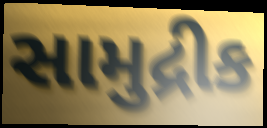
સામુદ્રીક